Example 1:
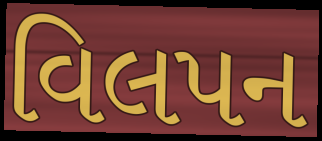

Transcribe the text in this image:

વિલપન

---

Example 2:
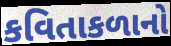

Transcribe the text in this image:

કવિતાકળાનો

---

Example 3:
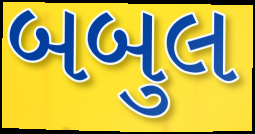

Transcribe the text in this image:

બબુલ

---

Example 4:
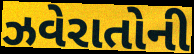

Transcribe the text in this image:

ઝવેરાતોની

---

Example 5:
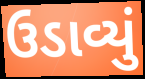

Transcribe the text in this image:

ઉડાવ્યું